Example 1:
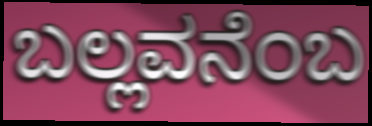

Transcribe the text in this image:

ಬಲ್ಲವನೆಂಬ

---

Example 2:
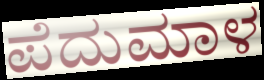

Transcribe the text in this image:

ಪೆದುಮಾಳ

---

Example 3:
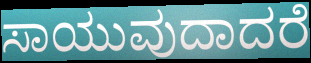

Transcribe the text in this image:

ಸಾಯುವುದಾದರೆ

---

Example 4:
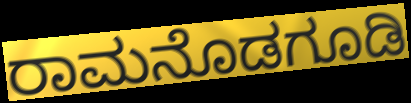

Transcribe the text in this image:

ರಾಮನೊಡಗೂಡಿ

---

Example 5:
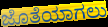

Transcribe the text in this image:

ಜೊತೆಯಾಗಲು